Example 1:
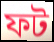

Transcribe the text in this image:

ফট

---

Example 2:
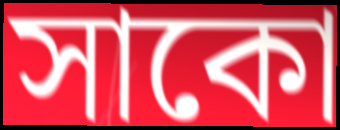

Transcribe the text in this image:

সাকো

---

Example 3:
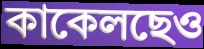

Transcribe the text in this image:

কাকেলছেও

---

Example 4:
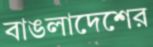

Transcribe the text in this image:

বাঙলাদেশের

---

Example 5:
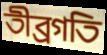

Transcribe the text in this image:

তীব্রগতি